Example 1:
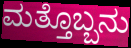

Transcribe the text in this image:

ಮತ್ತೊಬ್ಬನು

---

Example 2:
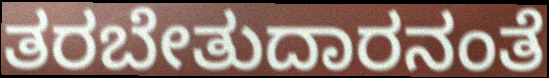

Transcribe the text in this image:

ತರಬೇತುದಾರನಂತೆ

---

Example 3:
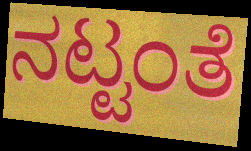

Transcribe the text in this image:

ನಟ್ಟಂತೆ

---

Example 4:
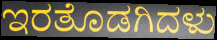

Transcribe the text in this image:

ಇರತೊಡಗಿದಳು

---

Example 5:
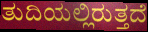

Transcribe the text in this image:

ತುದಿಯಲ್ಲಿರುತ್ತದೆ